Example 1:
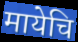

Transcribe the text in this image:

मायेचि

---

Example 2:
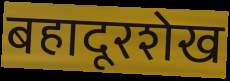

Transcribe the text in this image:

बहादूरशेख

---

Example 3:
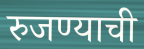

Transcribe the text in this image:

रुजण्याची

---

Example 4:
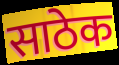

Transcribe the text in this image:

साठेक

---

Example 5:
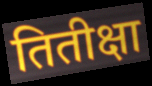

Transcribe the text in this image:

तितीक्षा